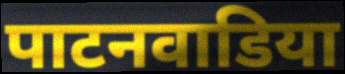
पाटनवाडिया